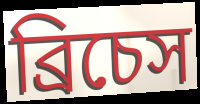
ব্রিচেস